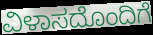
ವಿಳಾಸದೊಂದಿಗೆ